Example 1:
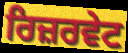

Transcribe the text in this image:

ਰਿਜ਼ਰਵੇਟ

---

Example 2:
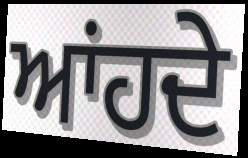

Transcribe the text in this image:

ਆਂਹਦੇ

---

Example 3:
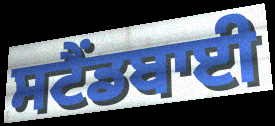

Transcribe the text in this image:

ਸਟੈਂਡਬਾਈ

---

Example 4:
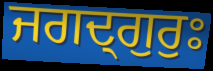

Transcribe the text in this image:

ਜਗਦ੍ਗੁਰੁਃ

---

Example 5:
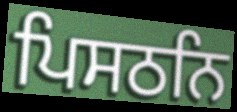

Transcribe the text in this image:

ਪਿਸਠਨਿ